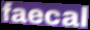
faecal